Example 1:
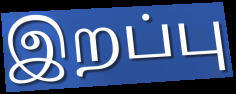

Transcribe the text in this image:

இறப்பு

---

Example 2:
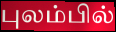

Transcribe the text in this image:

புலம்பில்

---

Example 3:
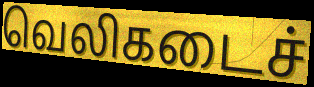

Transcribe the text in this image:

வெலிகடைச்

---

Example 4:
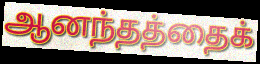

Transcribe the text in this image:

ஆனந்தத்தைக்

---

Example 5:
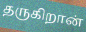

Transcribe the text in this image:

தருகிறான்